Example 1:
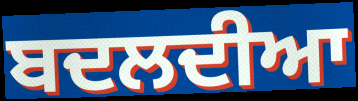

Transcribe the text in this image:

ਬਦਲਦੀਆ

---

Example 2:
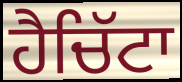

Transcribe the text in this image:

ਹੈਚਿੱਟਾ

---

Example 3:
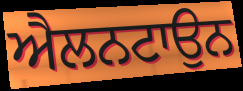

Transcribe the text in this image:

ਐਲਨਟਾਉਨ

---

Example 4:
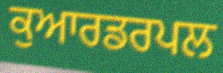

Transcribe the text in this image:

ਕੁਆਰਡਰਪਲ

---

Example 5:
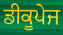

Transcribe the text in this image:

ਡੀਕੂਪੇਜ